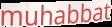
muhabbat